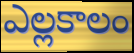
ఎల్లకాలం